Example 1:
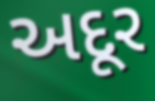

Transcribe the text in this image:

અદૂર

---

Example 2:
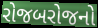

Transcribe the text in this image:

રોજબરોજનો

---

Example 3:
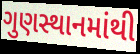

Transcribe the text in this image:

ગુણસ્થાનમાંથી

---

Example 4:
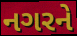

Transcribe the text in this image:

નગરને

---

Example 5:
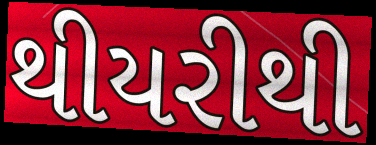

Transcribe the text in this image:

થીયરીથી